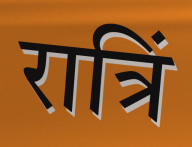
रात्रिं